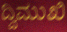
ದ್ವಿಮುಖಿ